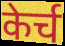
केर्च